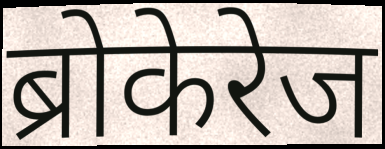
ब्रोकेरेज